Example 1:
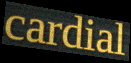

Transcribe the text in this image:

cardial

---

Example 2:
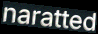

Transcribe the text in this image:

naratted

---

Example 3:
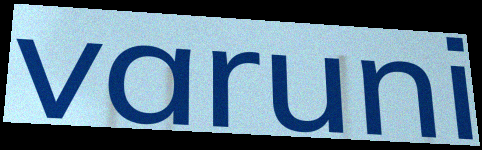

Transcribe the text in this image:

varuni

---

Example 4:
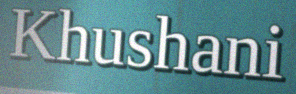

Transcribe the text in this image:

Khushani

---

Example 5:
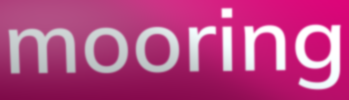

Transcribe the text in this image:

mooring